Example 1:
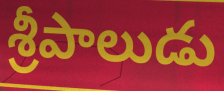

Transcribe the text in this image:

శ్రీపాలుడు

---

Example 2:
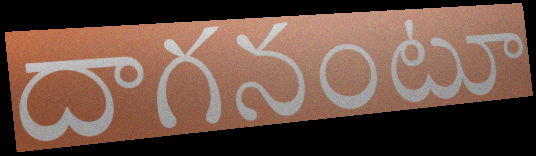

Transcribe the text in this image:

దాగనంటూ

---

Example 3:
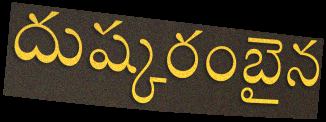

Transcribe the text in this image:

దుష్కరంబైన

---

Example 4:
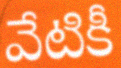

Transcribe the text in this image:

వేటికీ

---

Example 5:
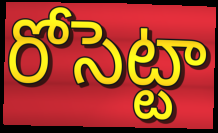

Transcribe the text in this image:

రోసెట్టా